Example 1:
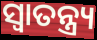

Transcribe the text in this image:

ସ୍ଵାତନ୍ତ୍ର୍ୟ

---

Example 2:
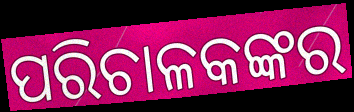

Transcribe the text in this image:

ପରିଚାଳକଙ୍କର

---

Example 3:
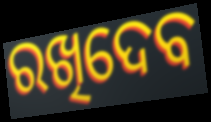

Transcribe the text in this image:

ରଖିଦେବ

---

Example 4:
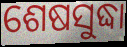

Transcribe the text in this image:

ଶେଷସୁଦ୍ଧା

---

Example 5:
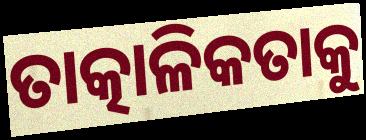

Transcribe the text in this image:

ତାତ୍କାଳିକତାକୁ